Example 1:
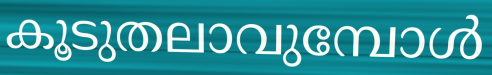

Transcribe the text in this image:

കൂടുതലാവുമ്പോൾ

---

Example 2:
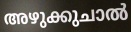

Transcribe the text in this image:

അഴുക്കുചാൽ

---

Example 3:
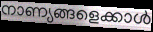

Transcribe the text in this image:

നാണ്യങ്ങളെക്കാൾ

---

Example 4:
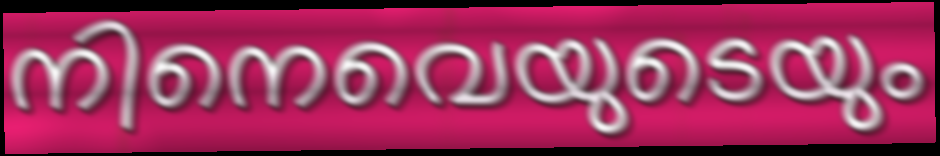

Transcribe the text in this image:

നിനെവെയുടെയും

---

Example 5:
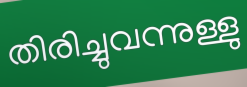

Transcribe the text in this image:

തിരിച്ചുവന്നുള്ളു